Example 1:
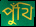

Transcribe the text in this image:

পুঁথি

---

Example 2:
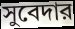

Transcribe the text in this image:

সুবেদার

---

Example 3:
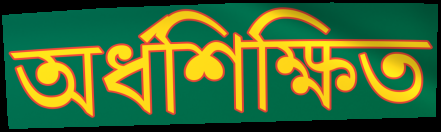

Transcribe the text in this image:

অর্ধশিক্ষিত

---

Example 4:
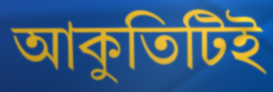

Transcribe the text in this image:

আকুতিটিই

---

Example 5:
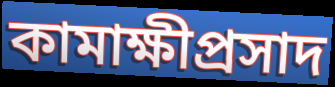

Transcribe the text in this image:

কামাক্ষীপ্রসাদ